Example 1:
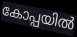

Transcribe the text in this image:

കോപ്പയിൽ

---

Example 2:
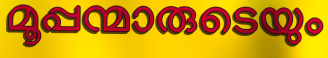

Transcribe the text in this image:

മൂപ്പന്മാരുടെയും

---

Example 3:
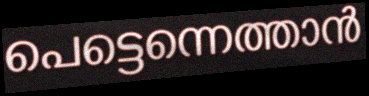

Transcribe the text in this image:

പെട്ടെന്നെത്താൻ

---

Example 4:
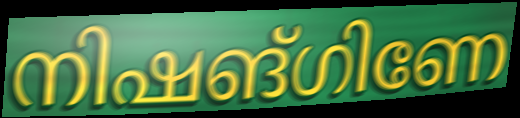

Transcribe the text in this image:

നിഷങ്ഗിണേ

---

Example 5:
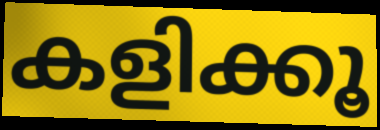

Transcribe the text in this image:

കളിക്കൂ